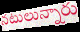
నటులున్నారు